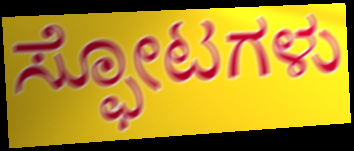
ಸ್ಫೋಟಗಳು